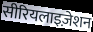
सीरियलाइज़ेशन